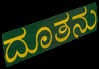
ದೂತನು